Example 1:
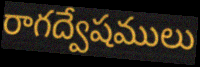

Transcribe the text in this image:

రాగద్వేషములు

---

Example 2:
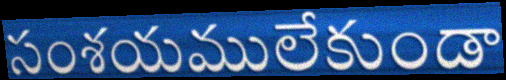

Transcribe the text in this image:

సంశయములేకుండా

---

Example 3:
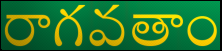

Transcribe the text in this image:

రాగవతాం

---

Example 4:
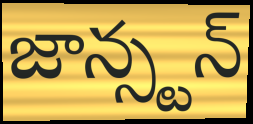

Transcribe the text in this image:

జాన్స్టన్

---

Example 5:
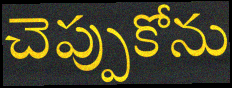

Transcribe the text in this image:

చెప్పుకోను